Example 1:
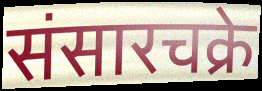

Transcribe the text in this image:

संसारचक्रे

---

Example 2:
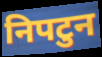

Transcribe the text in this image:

निपटुन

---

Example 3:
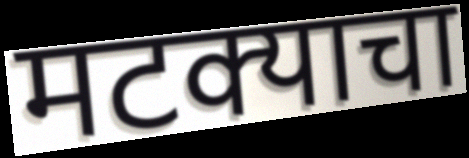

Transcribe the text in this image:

मटक्याचा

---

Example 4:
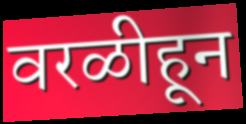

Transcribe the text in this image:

वरळीहून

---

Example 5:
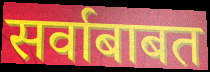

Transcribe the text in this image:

सर्वाबाबत